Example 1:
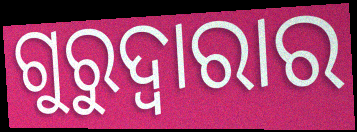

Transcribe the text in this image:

ଗୁରୁଦ୍ୱାରାର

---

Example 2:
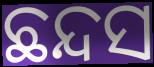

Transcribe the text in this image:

ଛନ୍ଦସ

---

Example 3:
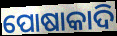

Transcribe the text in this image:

ପୋଷାକାଦି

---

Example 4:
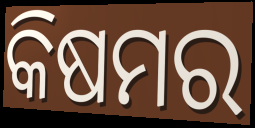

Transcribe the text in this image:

କିଷମର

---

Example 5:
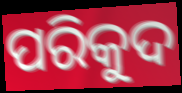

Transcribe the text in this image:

ପରିକୁଦ